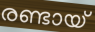
രണ്ടായ്